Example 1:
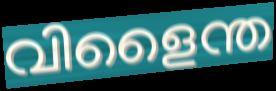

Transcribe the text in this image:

വിളൈന്ത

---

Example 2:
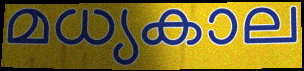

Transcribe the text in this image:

മധ്യകാല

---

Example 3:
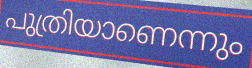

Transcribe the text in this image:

പുത്രിയാണെന്നും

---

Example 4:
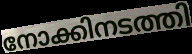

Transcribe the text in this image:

നോക്കിനടത്തി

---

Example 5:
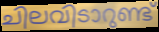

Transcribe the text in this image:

ചിലവിടാറുണ്ട്